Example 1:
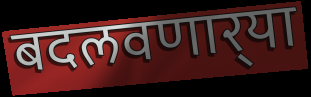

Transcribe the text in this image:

बदलवणार्‍या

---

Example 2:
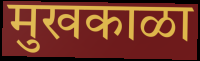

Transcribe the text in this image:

मुखकाळा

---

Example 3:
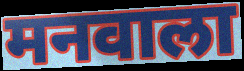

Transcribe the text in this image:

मनवाला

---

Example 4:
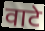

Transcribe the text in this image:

वाटे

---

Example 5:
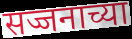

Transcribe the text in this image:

सज्जनाच्या